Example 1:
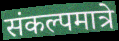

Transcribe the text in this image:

संकल्पमात्रे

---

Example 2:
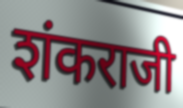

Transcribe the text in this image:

शंकराजी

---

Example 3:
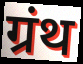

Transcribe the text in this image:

ग्रंथ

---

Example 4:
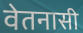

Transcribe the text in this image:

वेतनासी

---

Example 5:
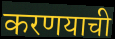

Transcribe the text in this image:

करणयाची